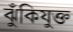
ঝুঁকিযুক্ত